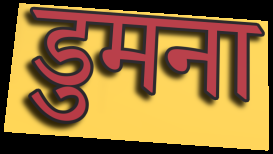
डुमना